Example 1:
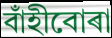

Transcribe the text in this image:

বাঁহীবোৰা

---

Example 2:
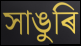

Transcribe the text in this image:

সাঙুৰি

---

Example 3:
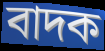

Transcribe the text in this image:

বাদক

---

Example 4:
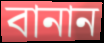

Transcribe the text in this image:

বানান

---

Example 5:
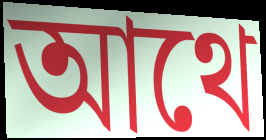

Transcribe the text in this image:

আথে